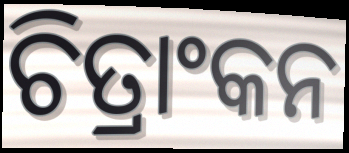
ଚିତ୍ରାଂକନ